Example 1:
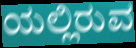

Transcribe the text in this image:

ಯಲ್ಲಿರುವ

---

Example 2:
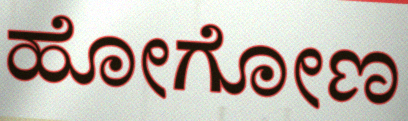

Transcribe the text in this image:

ಹೋಗೋಣ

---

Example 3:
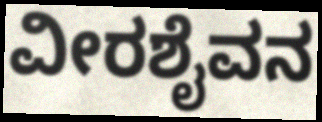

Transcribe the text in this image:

ವೀರಶೈವನ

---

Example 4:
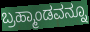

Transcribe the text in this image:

ಬ್ರಹ್ಮಾಂಡವನ್ನೂ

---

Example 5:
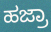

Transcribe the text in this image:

ಹಜ್ರಾ